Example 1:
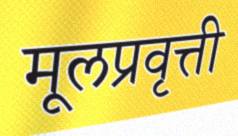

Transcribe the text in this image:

मूलप्रवृत्ती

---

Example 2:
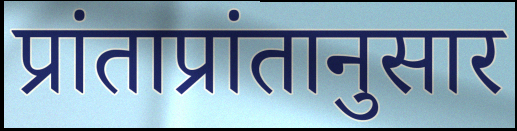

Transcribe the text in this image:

प्रांताप्रांतानुसार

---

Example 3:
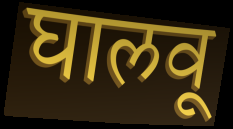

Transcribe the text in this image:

घालवू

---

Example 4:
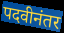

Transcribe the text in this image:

पदवीनंतर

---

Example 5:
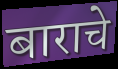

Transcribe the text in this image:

बाराचे